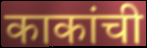
काकांची